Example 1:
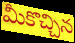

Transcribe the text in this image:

మీకొచ్చిన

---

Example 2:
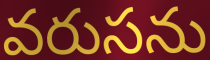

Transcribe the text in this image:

వరుసను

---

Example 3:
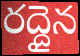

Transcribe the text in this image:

రద్దైన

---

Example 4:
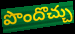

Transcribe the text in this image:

పొందొచ్చు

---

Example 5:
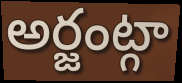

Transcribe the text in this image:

అర్జంట్గా